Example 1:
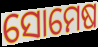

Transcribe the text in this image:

ସୋମେଷ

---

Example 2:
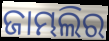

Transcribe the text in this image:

ଜାମ୍ଭଲିର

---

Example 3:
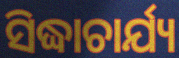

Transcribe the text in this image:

ସିଦ୍ଧାଚାର୍ଯ୍ୟ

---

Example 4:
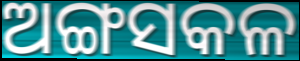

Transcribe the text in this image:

ଅଙ୍ଗସକଳ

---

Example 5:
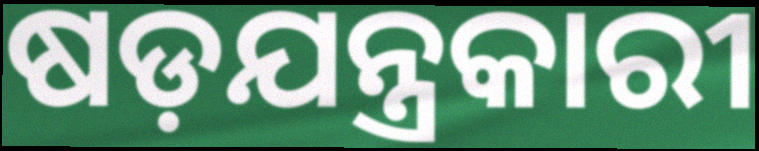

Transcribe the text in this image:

ଷଡ଼ଯନ୍ତ୍ରକାରୀ